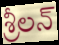
శ్రీలన్